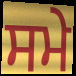
ਸਮੇ